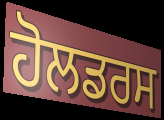
ਹੋਲਡਰਸ